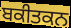
ਬਕੀਤਕਨ